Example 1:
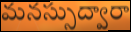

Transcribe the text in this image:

మనస్సుద్వారా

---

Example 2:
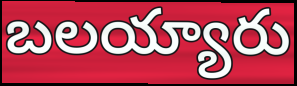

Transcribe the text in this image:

బలయ్యారు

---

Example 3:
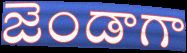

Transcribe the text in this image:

జెండాగా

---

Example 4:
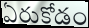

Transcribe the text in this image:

ఏరుకోడం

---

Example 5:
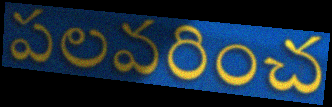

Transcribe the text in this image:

పలవరించ